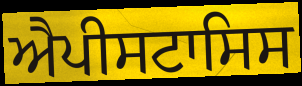
ਐਪੀਸਟਾਸਿਸ